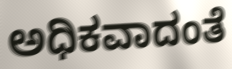
ಅಧಿಕವಾದಂತೆ